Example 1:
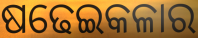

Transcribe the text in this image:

ଷଢେଇକଳାର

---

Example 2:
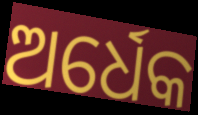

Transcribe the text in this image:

ଅର୍ଧେକ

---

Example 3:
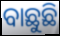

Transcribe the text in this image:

ବାଛୁଛି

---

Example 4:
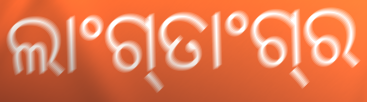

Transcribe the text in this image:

ଲାଂଗ୍‍ତାଂଗ୍‍ର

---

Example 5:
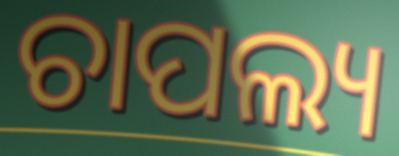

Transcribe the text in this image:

ଚାପଲ୍ୟ